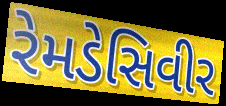
રેમડેસિવીર